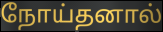
நோய்தனால்